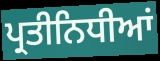
ਪ੍ਰਤੀਨਿਧੀਆਂ